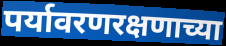
पर्यावरणरक्षणाच्या